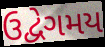
ઉદ્વેગમય